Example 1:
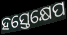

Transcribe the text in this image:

ହସ୍ତେକ୍ଷେପ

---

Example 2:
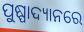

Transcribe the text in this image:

ପୁଷ୍ପାଦ୍ୟାନରେ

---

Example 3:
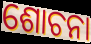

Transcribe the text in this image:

ଶୋଚନା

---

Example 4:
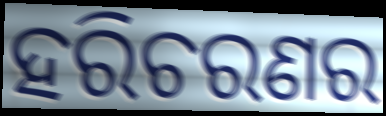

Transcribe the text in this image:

ହରିଚରଣର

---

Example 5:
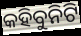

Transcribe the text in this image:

କହିବୁନିଟି